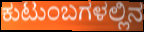
ಕುಟುಂಬಗಳಲ್ಲಿನ